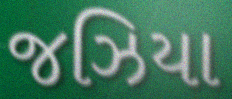
જઝિયા